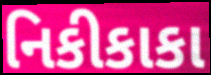
નિકીકાકા